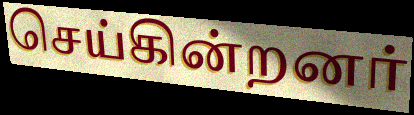
செய்கின்றனர்